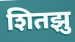
शितझु